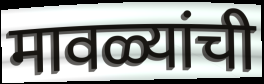
मावळ्यांची